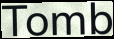
Tomb